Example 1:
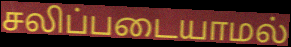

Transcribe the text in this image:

சலிப்படையாமல்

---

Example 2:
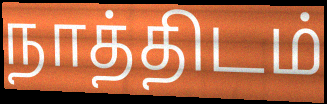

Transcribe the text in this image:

நாத்திடம்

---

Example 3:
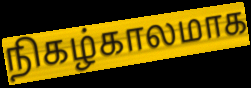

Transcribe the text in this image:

நிகழ்காலமாக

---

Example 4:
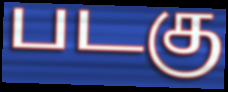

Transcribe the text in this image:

படகு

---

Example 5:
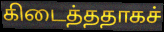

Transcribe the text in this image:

கிடைத்ததாகச்